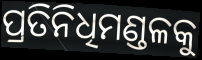
ପ୍ରତିନିଧିମଣ୍ଡଳକୁ